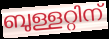
ബുള്ളറ്റിന്